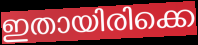
ഇതായിരിക്കെ